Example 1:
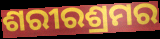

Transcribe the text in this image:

ଶରୀରଶ୍ରମର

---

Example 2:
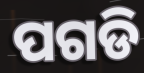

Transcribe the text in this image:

ପଗଡି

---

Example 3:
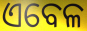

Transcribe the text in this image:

ଏବେଳ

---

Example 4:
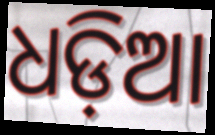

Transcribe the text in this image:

ଧଡ଼ିଆ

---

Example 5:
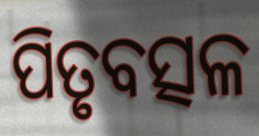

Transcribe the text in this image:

ପିତୃବତ୍ସଳ